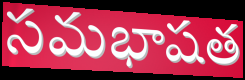
సమభాషత